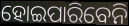
ହୋଇପାରିବେନି